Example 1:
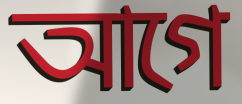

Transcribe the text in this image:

আগে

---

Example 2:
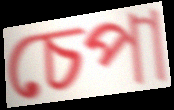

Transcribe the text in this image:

চেপা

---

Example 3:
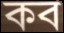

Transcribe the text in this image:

কব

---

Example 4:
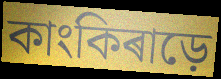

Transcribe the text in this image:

কাংকিৰাড়ে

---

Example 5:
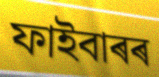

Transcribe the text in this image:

ফাইবাৰৰ